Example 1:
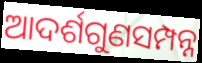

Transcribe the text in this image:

ଆଦର୍ଶଗୁଣସମ୍ପନ୍ନ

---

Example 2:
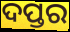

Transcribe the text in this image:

ଦପ୍ତର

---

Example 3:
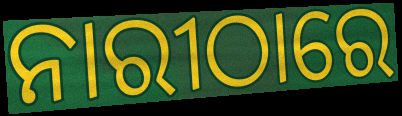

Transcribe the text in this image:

ନାରୀଠାରେ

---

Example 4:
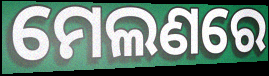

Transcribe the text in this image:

ମେଲଣରେ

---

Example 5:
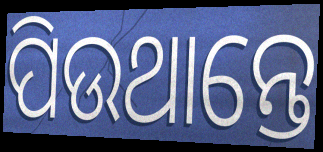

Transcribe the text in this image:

ପିଉଥାନ୍ତେ